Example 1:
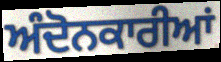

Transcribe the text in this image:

ਅੰਦੋਨਕਾਰੀਆਂ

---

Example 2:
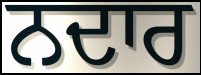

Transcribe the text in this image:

ਨਦਾਰ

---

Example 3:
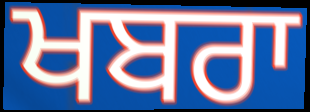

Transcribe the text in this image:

ਖਬਰਾ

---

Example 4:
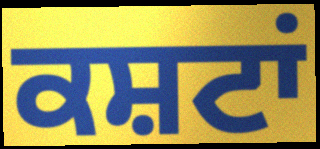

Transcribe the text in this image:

ਕਸ਼ਟਾਂ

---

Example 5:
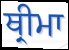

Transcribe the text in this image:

ਥ੍ਰੀਮਾ